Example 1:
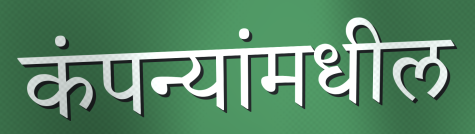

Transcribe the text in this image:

कंपन्यांमधील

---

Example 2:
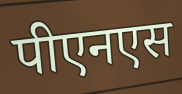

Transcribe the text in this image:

पीएनएस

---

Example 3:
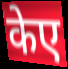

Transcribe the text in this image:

केए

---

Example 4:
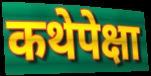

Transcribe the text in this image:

कथेपेक्षा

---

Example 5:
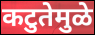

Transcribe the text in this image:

कटुतेमुळे